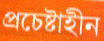
প্রচেষ্টাহীন